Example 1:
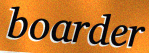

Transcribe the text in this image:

boarder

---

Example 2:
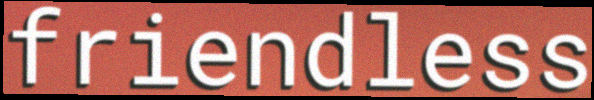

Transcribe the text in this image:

friendless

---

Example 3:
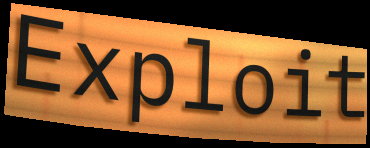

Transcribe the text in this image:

Exploit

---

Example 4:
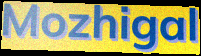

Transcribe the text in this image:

Mozhigal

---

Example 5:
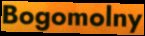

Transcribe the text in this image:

Bogomolny